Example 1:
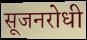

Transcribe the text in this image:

सूजनरोधी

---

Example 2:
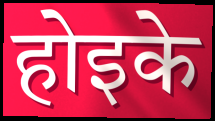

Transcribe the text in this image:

होइके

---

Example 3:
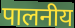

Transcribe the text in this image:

पालनीय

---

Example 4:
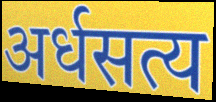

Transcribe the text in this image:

अर्धसत्य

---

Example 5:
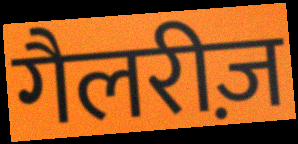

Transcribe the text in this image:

गैलरीज़